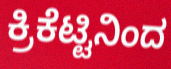
ಕ್ರಿಕೆಟ್ಟಿನಿಂದ